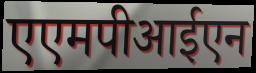
एएमपीआईएन